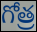
గోత్ర